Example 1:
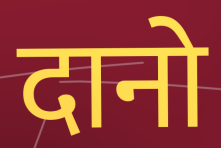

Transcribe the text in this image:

दानो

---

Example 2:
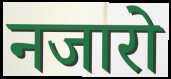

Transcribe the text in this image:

नजारो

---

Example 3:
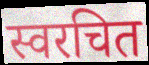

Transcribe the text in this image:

स्वरचित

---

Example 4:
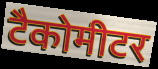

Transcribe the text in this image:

टैकोमीटर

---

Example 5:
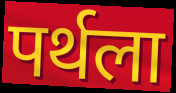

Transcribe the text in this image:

पर्थला